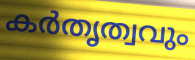
കർതൃത്വവും